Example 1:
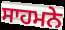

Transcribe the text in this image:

ਸਾਹਮਨੇ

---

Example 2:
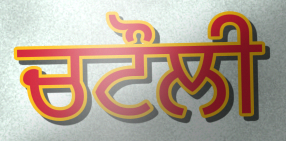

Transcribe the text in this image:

ਚਟੌਲੀ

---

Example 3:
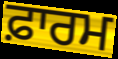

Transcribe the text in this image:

ਫ਼ਾਰਮ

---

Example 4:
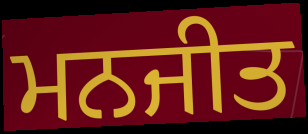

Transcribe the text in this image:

ਮਨਜੀਤ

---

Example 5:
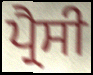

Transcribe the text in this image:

ਪ੍ਰੈਸੀ